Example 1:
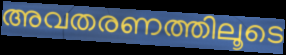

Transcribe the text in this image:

അവതരണത്തിലൂടെ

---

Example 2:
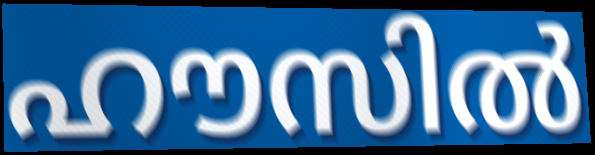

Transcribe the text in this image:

ഹൗസിൽ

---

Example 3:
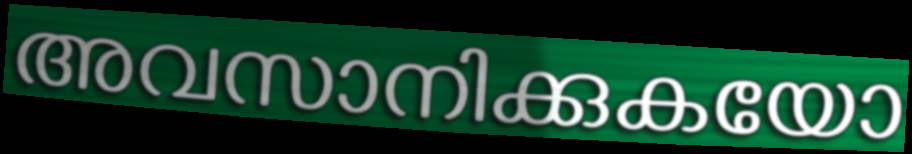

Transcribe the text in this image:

അവസാനിക്കുകയോ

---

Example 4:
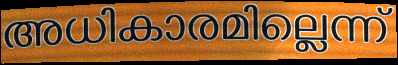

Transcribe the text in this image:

അധികാരമില്ലെന്ന്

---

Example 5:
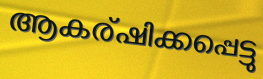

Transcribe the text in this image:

ആകര്ഷിക്കപ്പെട്ടു